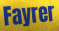
Fayrer